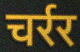
चर्रर